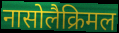
नासोलैक्रिमल